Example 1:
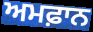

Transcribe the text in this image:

ਅਮਫ਼ਾਨ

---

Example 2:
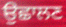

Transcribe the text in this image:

ਉਛਾਲਣ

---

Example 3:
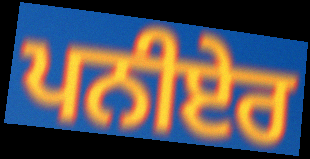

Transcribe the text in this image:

ਪਨੀਏਰ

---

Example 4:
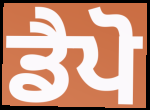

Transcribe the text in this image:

ਡੈਪੋ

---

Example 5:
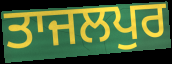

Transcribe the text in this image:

ਤਾਜਲਪੁਰ